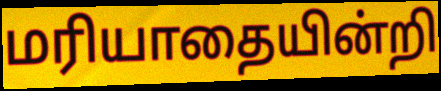
மரியாதையின்றி